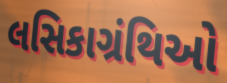
લસિકાગ્રંથિઓ